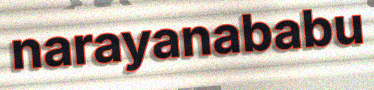
narayanababu